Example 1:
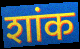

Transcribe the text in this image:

शांक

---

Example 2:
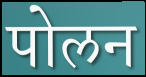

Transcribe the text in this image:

पोलन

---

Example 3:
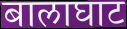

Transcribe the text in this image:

बालाघाट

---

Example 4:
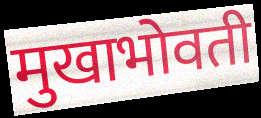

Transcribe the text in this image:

मुखाभोवती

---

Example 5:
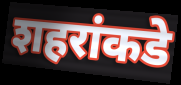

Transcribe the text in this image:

शहरांकडे